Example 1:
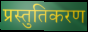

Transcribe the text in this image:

प्रस्तुतिकरण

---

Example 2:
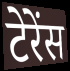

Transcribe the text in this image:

टेरेंस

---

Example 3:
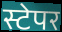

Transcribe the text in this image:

स्टेपर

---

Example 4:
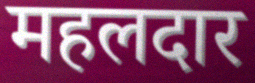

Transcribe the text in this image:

महलदार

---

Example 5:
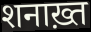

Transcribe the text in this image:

शनाख़्त